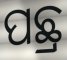
ପଛ୍ର